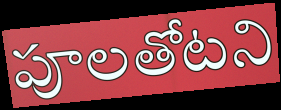
పూలతోటని